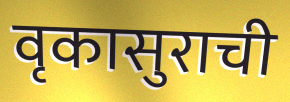
वृकासुराची